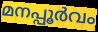
മനപ്പൂർവം